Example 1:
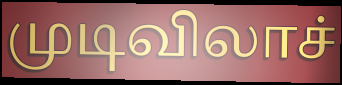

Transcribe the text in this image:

முடிவிலாச்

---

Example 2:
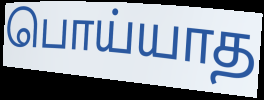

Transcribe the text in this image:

பொய்யாத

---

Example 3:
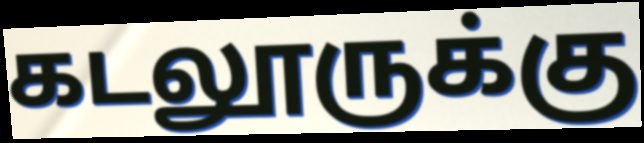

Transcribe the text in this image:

கடலூருக்கு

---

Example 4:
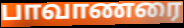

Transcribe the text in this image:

பாவாணரை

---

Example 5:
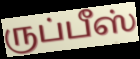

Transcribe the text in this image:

ருப்பீஸ்